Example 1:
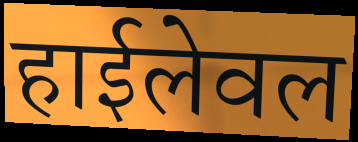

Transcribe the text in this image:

हाईलेवल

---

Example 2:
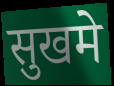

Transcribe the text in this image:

सुखमे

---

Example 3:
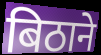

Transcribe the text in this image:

बिठाने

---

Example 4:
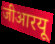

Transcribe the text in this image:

जीआरयू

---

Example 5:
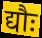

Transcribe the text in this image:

द्यौः